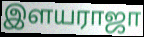
இளயராஜா